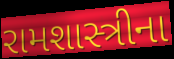
રામશાસ્ત્રીના